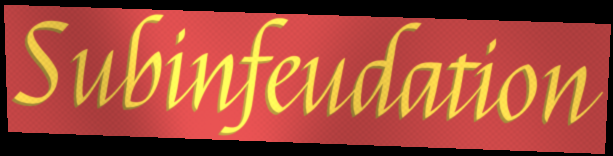
Subinfeudation